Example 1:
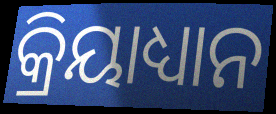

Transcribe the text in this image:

କ୍ରିୟାଧ୍ୟାନ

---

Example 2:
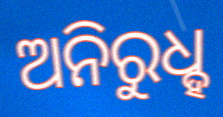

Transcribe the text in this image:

ଅନିରୁଧ୍ହ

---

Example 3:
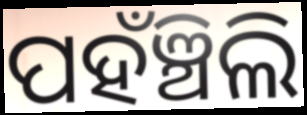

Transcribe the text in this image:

ପହଁଞ୍ଚିଲି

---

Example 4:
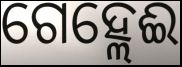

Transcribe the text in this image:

ଗେହ୍ଲେଈ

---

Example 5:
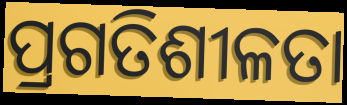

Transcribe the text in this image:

ପ୍ରଗତିଶୀଳତା